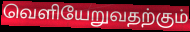
வெளியேறுவதற்கும்